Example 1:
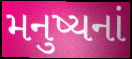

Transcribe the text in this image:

મનુષ્યનાં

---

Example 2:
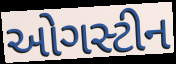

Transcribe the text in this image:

ઓગસ્ટીન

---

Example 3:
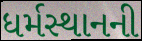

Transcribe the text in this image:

ધર્મસ્થાનની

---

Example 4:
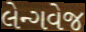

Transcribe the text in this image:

લેન્ગવેજ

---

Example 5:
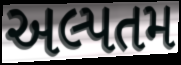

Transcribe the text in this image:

અલ્પતમ